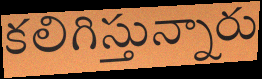
కలిగిస్తున్నారు